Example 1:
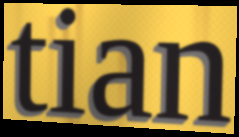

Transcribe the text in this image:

tian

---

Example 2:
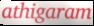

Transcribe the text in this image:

athigaram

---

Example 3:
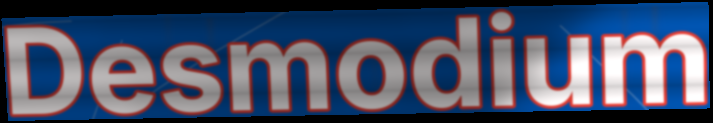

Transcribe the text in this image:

Desmodium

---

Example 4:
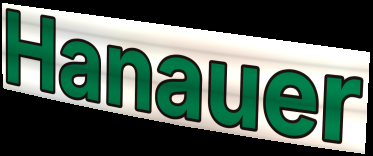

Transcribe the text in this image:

Hanauer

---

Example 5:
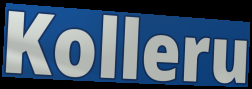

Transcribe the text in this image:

Kolleru